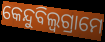
କେନ୍ଦୁବିଲ୍ଵଗ୍ରାମେ